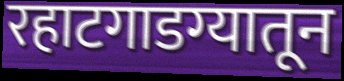
रहाटगाडग्यातून